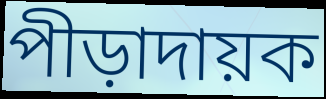
পীড়াদায়ক